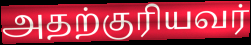
அதற்குரியவர்